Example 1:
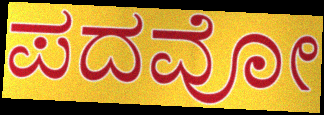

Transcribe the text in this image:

ಪದವೋ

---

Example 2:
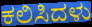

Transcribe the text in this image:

ಕಲಿಸಿದಳು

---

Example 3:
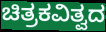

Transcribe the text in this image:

ಚಿತ್ರಕವಿತ್ವದ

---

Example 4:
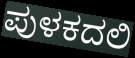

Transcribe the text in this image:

ಪುಳಕದಲಿ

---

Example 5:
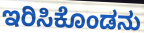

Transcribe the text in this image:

ಇರಿಸಿಕೊಂಡನು